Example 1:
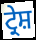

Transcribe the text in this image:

ਟ੍ਰੇਸ਼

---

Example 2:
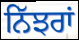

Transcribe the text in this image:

ਨਿੱਝਰਾਂ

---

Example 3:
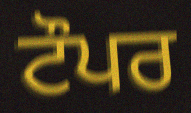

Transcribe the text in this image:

ਟੌਪਰ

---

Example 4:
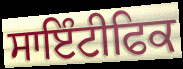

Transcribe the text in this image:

ਸਾਇੰਟੀਫਿਕ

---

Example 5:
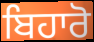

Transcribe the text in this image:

ਬਿਹਾਰੋ